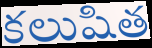
కలుషిత